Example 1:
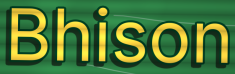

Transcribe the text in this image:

Bhison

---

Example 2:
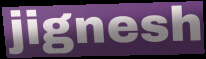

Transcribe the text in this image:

jignesh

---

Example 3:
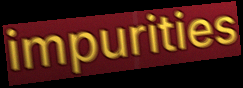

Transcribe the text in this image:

impurities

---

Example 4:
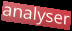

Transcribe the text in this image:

analyser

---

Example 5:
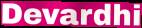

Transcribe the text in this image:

Devardhi